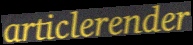
articlerender